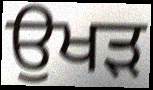
ਉਖੜ